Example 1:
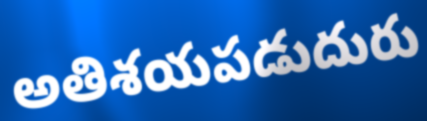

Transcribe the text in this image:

అతిశయపడుదురు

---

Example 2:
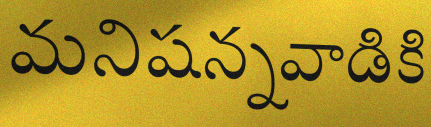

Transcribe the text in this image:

మనిషన్నవాడికి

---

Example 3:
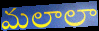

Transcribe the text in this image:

మలాలా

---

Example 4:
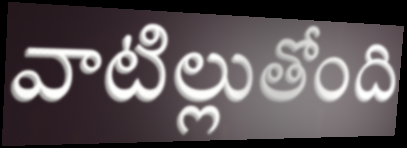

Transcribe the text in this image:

వాటిల్లుతోంది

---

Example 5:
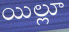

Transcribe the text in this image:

యిల్లూ